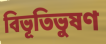
বিভূতিভুষণ